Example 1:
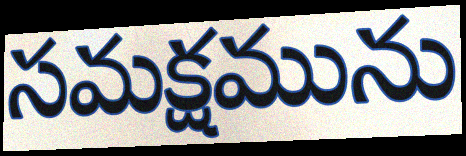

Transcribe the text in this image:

సమక్షమును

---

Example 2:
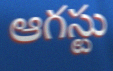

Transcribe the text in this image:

ఆగస్టు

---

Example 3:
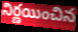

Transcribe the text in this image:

నిర్ణయించిన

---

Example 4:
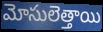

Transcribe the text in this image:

మోసులెత్తాయి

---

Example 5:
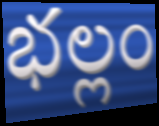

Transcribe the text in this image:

భల్లం